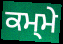
ਕਮ੍ਮੇ